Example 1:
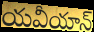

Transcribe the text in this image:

యవీయాన్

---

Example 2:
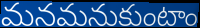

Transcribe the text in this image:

మనమనుకుంటాం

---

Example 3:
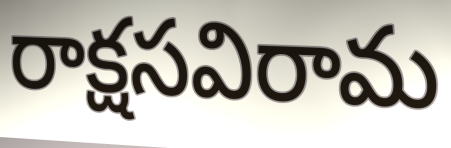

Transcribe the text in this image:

రాక్షసవిరామ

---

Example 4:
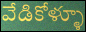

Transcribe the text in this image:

వేడికోళ్ళూ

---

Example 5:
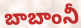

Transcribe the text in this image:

బాబాంనీ